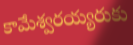
కామేశ్వరయ్యరుకు